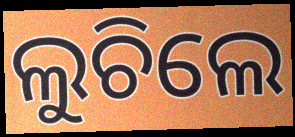
ଲୁଚିଲେ